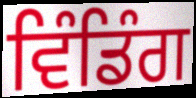
ਵਿੰਡਿੰਗ